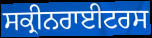
ਸਕ੍ਰੀਨਰਾਈਟਰਸ